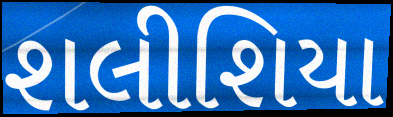
શલીશિયા